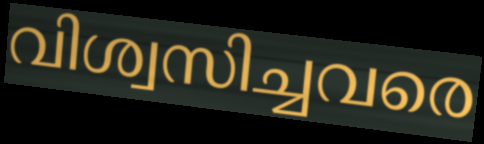
വിശ്വസിച്ചവരെ